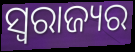
ସ୍ୱରାଜ୍ୟର